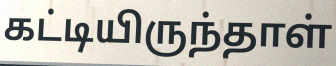
கட்டியிருந்தாள்